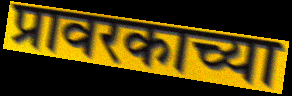
प्रावरकाच्या